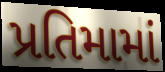
પ્રતિમામાં